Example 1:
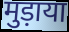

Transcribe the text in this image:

मुड़ाया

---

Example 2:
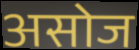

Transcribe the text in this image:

असोज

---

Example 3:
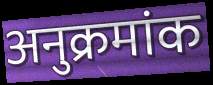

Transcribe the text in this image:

अनुक्रमांक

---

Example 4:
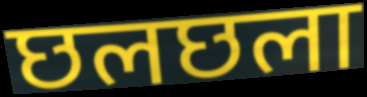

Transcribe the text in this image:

छलछला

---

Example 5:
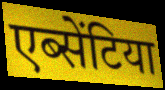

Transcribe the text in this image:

एब्सेंटिया